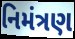
નિમંત્રણ